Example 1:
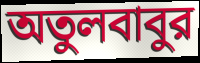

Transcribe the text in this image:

অতুলবাবুর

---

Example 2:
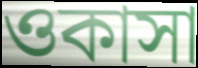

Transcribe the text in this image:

ওকাসা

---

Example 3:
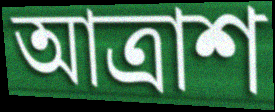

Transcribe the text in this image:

আত্রাশ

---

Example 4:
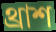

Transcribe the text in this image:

থ্রাশ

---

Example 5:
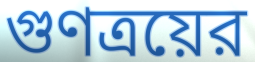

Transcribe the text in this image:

গুণত্রয়ের